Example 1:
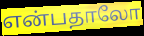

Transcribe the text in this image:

என்பதாலோ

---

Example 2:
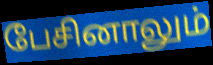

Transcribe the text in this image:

பேசினாலும்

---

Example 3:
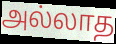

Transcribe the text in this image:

அல்லாத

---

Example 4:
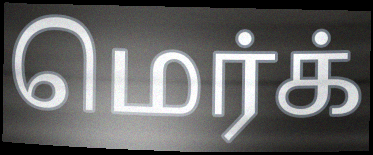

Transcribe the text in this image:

மெர்க்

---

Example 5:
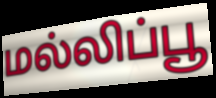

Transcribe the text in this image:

மல்லிப்பூ